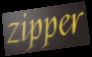
zipper